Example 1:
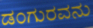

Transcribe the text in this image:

ಡಂಗುರವನು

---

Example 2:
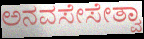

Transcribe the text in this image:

ಅನವಸೇಸೇತ್ವಾ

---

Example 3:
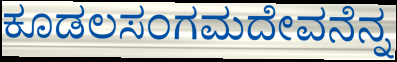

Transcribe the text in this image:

ಕೂಡಲಸಂಗಮದೇವನೆನ್ನ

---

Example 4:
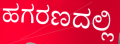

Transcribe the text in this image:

ಹಗರಣದಲ್ಲಿ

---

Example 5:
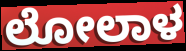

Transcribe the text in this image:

ಲೋಲಾಳ